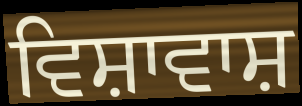
ਵਿਸ਼ਾਵਾਸ਼